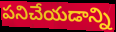
పనిచేయడాన్ని